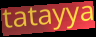
tatayya